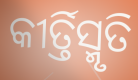
କୀର୍ତ୍ତିସ୍ମୃତି